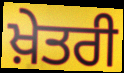
ਖ਼ੇਤਰੀ